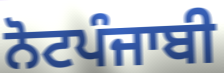
ਨੋਟਪੰਜਾਬੀ